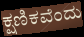
ಕ್ಷಣಿಕವೆಂದು